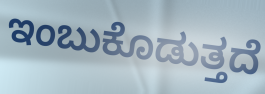
ಇಂಬುಕೊಡುತ್ತದೆ